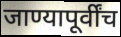
जाण्यापूर्वींच